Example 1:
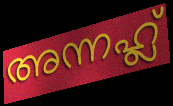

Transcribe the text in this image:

അന്നഹ്ല്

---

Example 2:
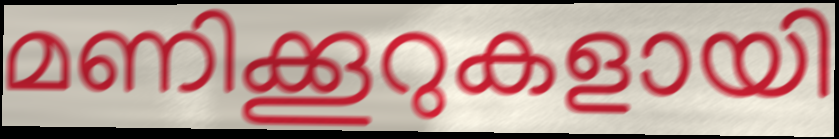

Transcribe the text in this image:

മണിക്കൂറുകളായി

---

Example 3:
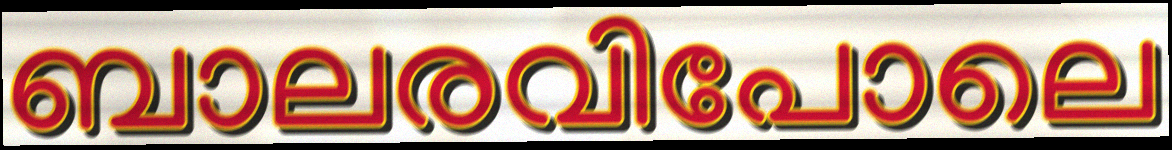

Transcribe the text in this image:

ബാലരവിപോലെ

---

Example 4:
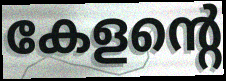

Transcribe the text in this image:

കേളന്റെ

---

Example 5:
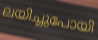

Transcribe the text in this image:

ലയിച്ചുപോയി